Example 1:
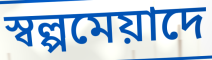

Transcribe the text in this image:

স্বল্পমেয়াদে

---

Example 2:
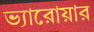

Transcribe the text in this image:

ভ্যারোয়ার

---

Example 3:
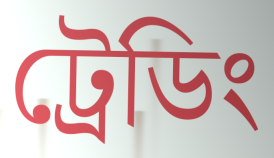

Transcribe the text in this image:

ট্রেডিং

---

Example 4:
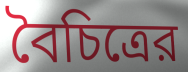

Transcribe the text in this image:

বৈচিত্রের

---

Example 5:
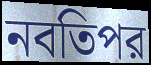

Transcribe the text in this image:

নবতিপর